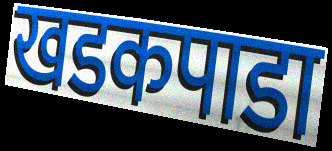
खडकपाडा